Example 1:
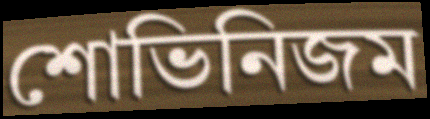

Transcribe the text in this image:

শোভিনিজম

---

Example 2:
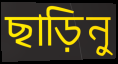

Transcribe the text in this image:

ছাড়িনু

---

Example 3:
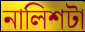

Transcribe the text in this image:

নালিশটা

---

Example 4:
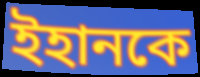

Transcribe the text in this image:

ইহানকে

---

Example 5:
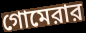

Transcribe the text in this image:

গোমেরার